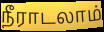
நீராடலாம்